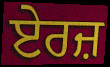
ਏਰਜ਼